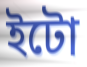
ইটো